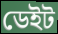
ডেইট